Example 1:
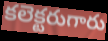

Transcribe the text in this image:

కలెక్టరుగారు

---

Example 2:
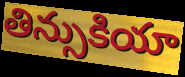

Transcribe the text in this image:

తిన్సుకియా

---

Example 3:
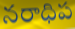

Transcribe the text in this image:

నరాధిప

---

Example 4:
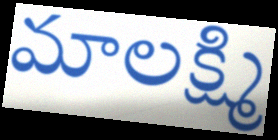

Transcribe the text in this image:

మాలక్ష్మి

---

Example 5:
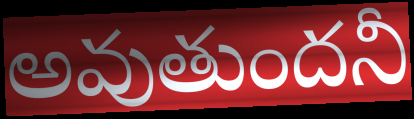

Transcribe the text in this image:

అవుతుందనీ